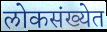
लोकसंख्येत